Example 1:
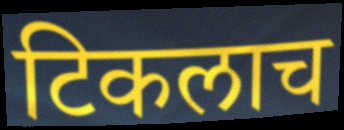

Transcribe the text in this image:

टिकलाच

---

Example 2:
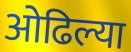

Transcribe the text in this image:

ओढिल्या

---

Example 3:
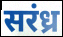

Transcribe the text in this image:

सरंध्र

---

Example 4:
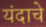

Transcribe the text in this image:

यंदाचे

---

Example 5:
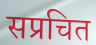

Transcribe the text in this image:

सप्रचित